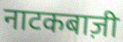
नाटकबाज़ी